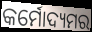
କର୍ମୋଦ୍ୟମର